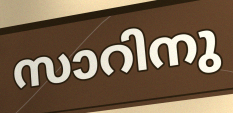
സാറിനു